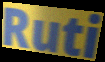
Ruti